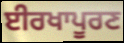
ਈਰਖਾਪੂਰਣ